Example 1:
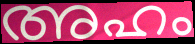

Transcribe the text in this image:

അഹം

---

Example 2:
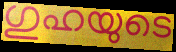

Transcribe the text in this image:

ഗുഹയുടെ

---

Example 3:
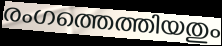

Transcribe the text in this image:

രംഗത്തെത്തിയതും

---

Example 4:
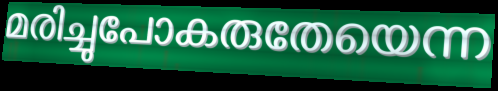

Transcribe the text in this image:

മരിച്ചുപോകരുതേയെന്ന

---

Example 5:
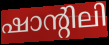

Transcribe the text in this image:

ഷാന്റിലി